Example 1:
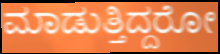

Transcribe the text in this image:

ಮಾಡುತ್ತಿದ್ದರೋ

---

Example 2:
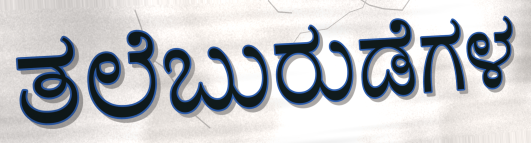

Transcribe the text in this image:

ತಲೆಬುರುಡೆಗಳ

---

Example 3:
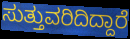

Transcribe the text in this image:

ಸುತ್ತುವರಿದಿದ್ದಾರೆ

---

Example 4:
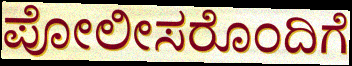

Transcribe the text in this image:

ಪೋಲೀಸರೊಂದಿಗೆ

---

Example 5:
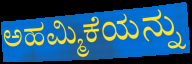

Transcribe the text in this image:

ಅಹಮ್ಮಿಕೆಯನ್ನು